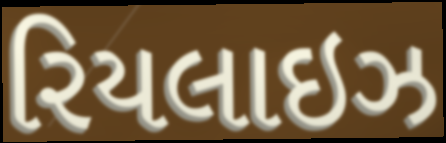
રિયલાઇઝ